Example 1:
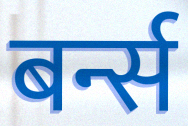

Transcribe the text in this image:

बर्न्स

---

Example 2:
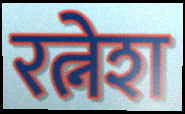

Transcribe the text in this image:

रत्नेश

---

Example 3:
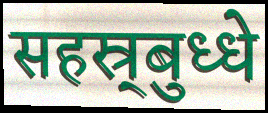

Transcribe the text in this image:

सहस्र्बुध्धे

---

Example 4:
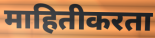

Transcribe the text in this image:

माहितीकरता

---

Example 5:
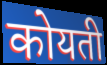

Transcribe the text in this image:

कोयती